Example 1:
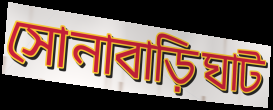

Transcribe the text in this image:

সোনাবাড়িঘাট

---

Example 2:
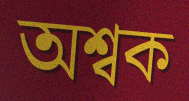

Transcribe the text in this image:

অশ্বক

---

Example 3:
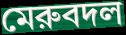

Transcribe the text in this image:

মেরুবদল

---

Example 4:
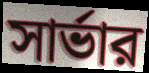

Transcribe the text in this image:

সার্ভার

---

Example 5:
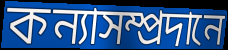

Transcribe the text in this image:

কন্যাসম্প্রদানে